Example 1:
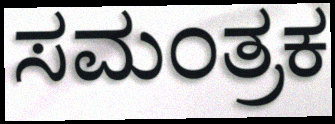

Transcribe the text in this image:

ಸಮಂತ್ರಕ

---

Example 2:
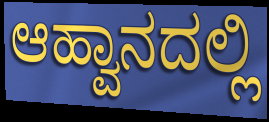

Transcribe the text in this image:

ಆಹ್ವಾನದಲ್ಲಿ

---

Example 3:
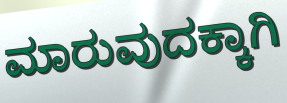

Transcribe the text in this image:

ಮಾರುವುದಕ್ಕಾಗಿ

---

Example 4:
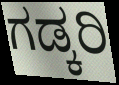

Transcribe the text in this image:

ಗಡ್ಕರಿ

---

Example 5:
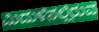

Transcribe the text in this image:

ಮಿದುಳಿನಲ್ಲಿರುವ